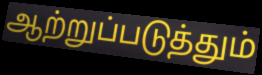
ஆற்றுப்படுத்தும்